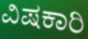
ವಿಷಕಾರಿ